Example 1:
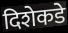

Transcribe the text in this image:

दिशेकडे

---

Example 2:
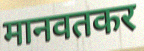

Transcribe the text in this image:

मानवतकर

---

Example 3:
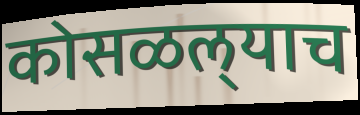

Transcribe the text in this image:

कोसळल्याच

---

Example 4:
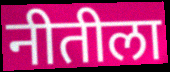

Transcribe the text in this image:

नीतीला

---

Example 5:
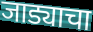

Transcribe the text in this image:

जाड्याचा